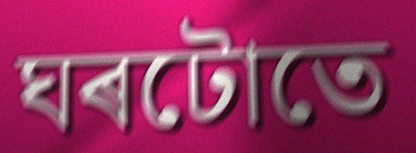
ঘৰটোতে